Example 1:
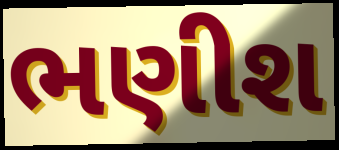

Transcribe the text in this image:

ભણીશ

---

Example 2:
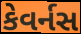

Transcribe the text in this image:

કેવર્નસ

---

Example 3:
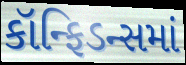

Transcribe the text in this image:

કૉન્ફિડન્સમાં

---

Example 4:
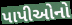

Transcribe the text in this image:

પાપીઓનો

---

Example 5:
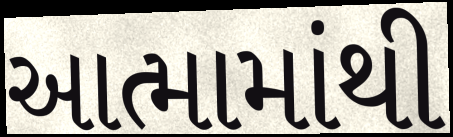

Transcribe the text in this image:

આત્મામાંથી